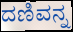
ದಣಿವನ್ನ